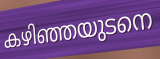
കഴിഞ്ഞയുടനെ